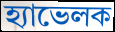
হ্যাভেলক